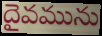
దైవమును